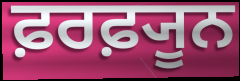
ਫ਼ਰਫ਼੍ਯੂਨ